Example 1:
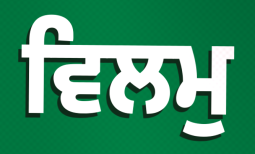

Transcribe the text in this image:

ਵਿਲਮੁ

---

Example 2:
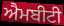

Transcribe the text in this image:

ਐਮਬੀਟੀ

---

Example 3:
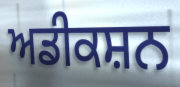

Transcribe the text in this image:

ਅਡੀਕਸ਼ਨ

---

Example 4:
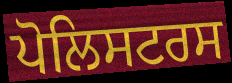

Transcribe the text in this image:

ਪੋਲਿਸਟਰਸ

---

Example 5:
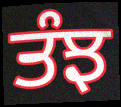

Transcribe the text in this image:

ਤੰਝ